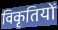
विकृतियों